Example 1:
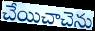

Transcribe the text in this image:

చేయిచాచెను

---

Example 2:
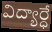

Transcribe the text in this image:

విద్యార్ధే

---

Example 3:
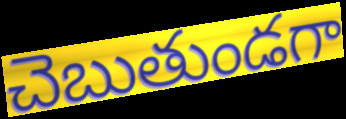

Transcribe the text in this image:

చెబుతుండగా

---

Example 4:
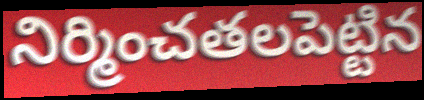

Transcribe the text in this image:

నిర్మించతలపెట్టిన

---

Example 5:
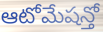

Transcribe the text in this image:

ఆటోమేషన్తో